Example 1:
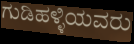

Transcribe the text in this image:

ಗುಡಿಹಳ್ಳಿಯವರು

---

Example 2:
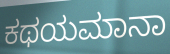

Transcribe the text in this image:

ಕಥಯಮಾನಾ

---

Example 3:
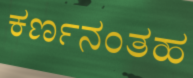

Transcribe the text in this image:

ಕರ್ಣನಂತಹ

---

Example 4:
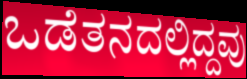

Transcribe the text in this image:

ಒಡೆತನದಲ್ಲಿದ್ದವು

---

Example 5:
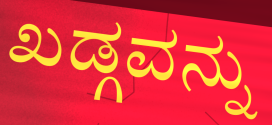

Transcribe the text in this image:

ಖಡ್ಗವನ್ನು